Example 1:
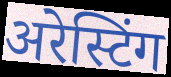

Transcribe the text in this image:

अरेस्टिंग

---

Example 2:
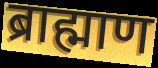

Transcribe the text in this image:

ब्राह्माण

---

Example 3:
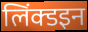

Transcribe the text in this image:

लिंक्‍डइन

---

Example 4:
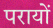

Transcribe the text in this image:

परायों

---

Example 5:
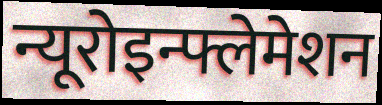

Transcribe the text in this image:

न्यूरोइन्फ्लेमेशन